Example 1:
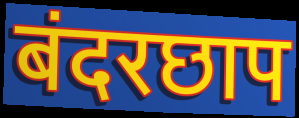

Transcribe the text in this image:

बंदरछाप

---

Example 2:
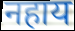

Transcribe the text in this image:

नहाय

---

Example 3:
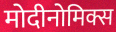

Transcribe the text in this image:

मोदीनोमिक्स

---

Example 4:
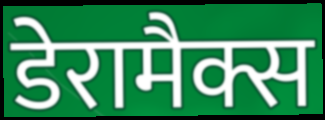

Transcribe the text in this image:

डेरामैक्स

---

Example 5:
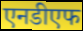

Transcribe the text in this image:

एनडीएफ